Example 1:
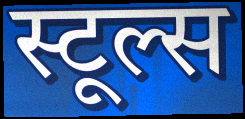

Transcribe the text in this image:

स्टूल्स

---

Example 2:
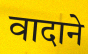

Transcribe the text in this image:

वादाने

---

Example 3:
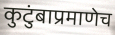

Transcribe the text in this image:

कुटुंबाप्रमाणेच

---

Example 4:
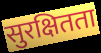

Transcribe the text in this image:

सुरक्षितता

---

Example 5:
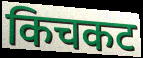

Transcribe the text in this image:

किचकट